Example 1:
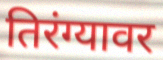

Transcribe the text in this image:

तिरंग्यावर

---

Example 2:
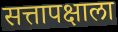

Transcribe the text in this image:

सत्तापक्षाला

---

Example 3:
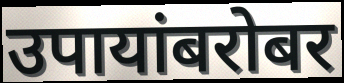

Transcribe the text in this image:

उपायांबरोबर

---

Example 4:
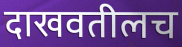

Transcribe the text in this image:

दाखवतीलच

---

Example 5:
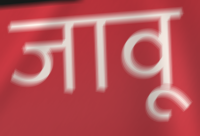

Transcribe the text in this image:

जावू